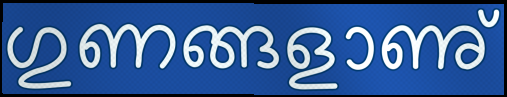
ഗുണങ്ങളാണു്